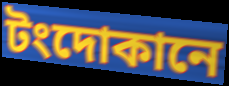
টংদোকানে